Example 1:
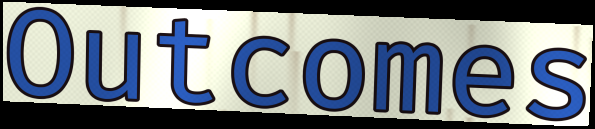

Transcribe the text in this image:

Outcomes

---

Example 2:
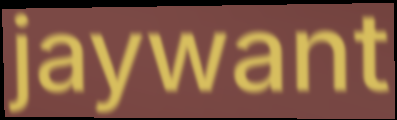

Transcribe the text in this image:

jaywant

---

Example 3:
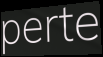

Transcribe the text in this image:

perte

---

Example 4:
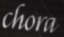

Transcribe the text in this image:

chora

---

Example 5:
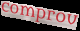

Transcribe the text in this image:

comprou